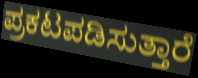
ಪ್ರಕಟಪಡಿಸುತ್ತಾರೆ